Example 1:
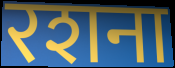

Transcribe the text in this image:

रशना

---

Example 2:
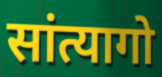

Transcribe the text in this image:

सांत्यागो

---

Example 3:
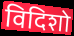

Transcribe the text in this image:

विदिशो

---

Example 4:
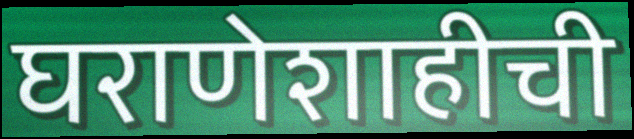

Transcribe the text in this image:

घराणेशाहीची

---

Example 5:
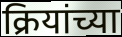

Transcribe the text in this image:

क्रियांच्या